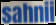
sahnii